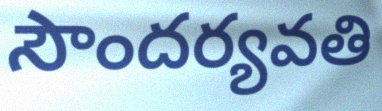
సౌందర్యవతి